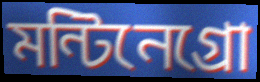
মন্টিনেগ্রো